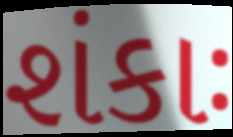
શંકાઃ